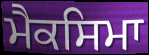
ਮੈਕਸਿਮਾ